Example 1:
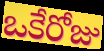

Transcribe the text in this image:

ఒకేరోజు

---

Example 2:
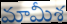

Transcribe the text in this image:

మామీశ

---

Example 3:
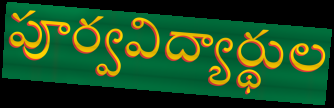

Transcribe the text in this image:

పూర్వవిద్యార్థుల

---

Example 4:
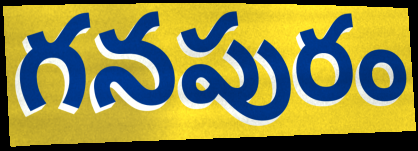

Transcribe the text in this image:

గనపురం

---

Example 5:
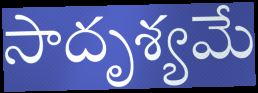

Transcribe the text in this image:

సాదృశ్యమే